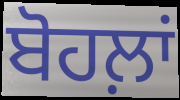
ਬੋਹਲ਼ਾਂ